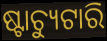
ଷ୍ଟାଚ୍ୟୁଟାରି